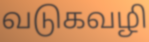
வடுகவழி